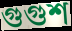
গুগুশ